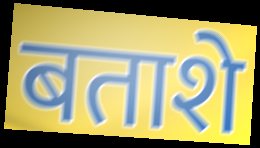
बताशे